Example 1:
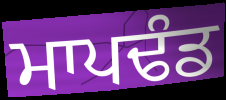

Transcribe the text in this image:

ਮਾਪਢੰਡ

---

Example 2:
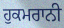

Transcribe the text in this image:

ਹੁਕਮਰਾਨੀ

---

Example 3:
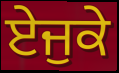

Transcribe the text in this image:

ਏਜੁਕੇ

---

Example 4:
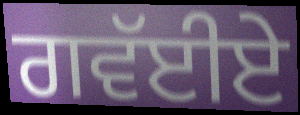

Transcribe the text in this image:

ਗਵੱਈਏ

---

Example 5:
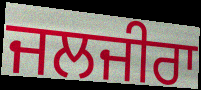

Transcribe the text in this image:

ਜਲਜੀਰਾ